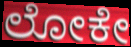
ಲೋಕೇ